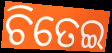
ଚିତେଇ